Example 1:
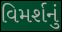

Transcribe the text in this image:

વિમર્શનું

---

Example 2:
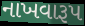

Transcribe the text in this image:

નાખવારૂપ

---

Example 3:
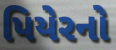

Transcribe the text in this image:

પિયેરનો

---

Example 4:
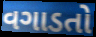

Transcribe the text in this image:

વગાડતો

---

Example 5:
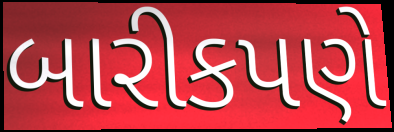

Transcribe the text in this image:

બારીકપણે